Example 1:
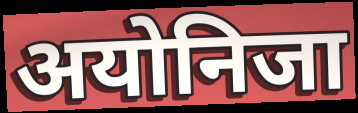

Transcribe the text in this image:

अयोनिजा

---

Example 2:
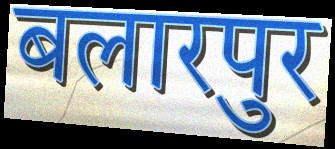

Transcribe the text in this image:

बलारपुर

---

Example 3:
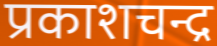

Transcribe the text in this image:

प्रकाशचन्द्र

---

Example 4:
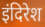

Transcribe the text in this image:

इंदिरेश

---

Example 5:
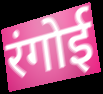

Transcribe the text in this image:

रंगोई